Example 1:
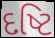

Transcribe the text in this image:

દષ્ટિ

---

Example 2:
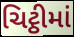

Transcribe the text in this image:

ચિટ્ઠીમાં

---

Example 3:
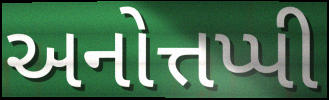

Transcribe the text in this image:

અનોત્તપ્પી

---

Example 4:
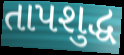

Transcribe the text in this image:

તાપશુદ્ધ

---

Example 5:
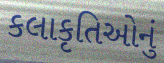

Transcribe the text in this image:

કલાકૃતિઓનું